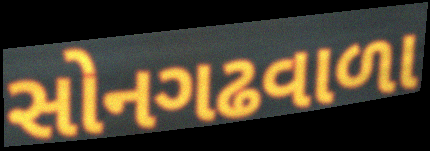
સોનગઢવાળા